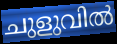
ചുളുവിൽ